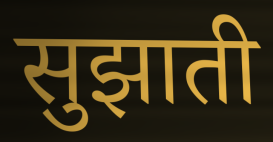
सुझाती